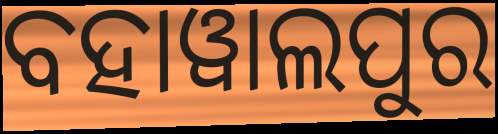
ବହାୱାଲପୁର